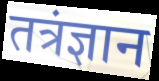
तत्रंज्ञान